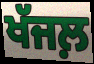
ਖੱਜਲ਼